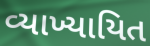
વ્યાખ્યાયિત